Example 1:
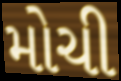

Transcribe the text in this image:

મોચી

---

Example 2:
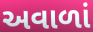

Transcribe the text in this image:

અવાળાં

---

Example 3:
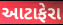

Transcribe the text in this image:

આટાફેરા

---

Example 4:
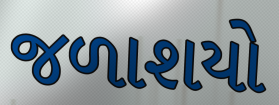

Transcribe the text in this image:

જળાશયો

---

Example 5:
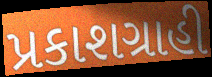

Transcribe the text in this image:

પ્રકાશગ્રાહી